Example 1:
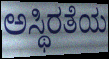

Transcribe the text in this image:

ಅಸ್ಥಿರತೆಯ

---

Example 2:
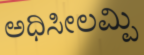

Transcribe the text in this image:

ಅಧಿಸೀಲಮ್ಪಿ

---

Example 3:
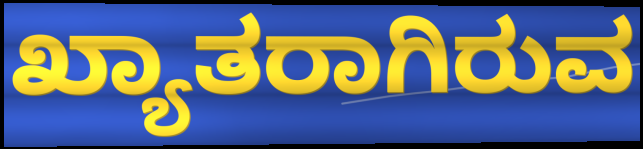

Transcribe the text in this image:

ಖ್ಯಾತರಾಗಿರುವ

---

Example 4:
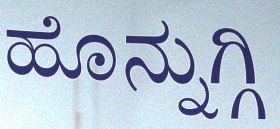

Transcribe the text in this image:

ಹೊನ್ನುಗ್ಗಿ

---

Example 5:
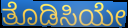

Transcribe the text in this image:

ತೊಡಿಸಿಯೇ